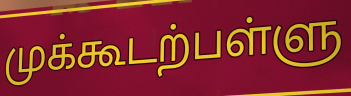
முக்கூடற்பள்ளு